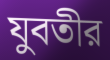
যুবতীর